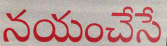
నయంచేసే